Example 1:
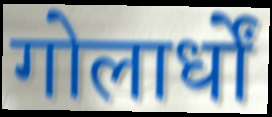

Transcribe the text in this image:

गोलार्धों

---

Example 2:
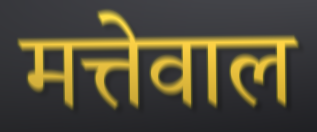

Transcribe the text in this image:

मत्तेवाल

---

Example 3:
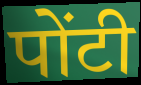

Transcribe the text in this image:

पोंटी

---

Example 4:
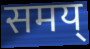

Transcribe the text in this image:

समय्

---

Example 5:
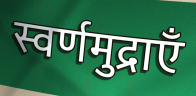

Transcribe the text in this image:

स्वर्णमुद्राएँ